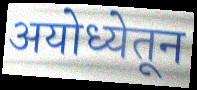
अयोध्येतून